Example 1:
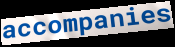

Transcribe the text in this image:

accompanies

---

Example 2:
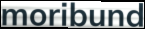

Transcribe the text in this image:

moribund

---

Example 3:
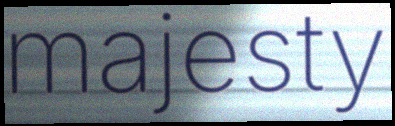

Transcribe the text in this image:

majesty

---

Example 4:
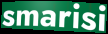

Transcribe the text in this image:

smarisi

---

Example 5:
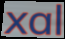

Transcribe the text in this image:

xal